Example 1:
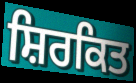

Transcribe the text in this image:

ਸ਼ਿਰਕਿਤ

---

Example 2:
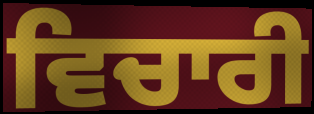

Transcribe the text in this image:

ਵਿਚਾਰੀ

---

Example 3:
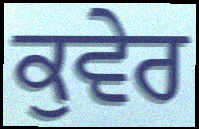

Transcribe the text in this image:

ਕੁਵੇਰ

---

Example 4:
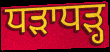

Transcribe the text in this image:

ਧੜਾਧੜ੍ਹ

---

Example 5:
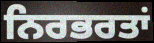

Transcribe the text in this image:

ਨਿਰਭਰਤਾਂ